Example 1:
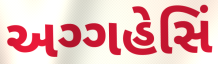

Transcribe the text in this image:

અગ્ગહેસિં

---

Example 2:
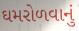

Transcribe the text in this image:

ઘમરોળવાનું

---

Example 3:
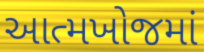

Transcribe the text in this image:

આત્મખોજમાં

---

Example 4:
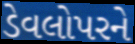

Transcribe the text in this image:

ડેવલોપરને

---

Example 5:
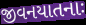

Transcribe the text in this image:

જીવનયાતનાઃ